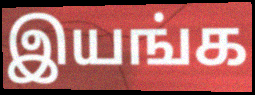
இயங்க